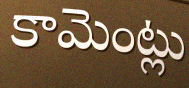
కామెంట్లు